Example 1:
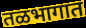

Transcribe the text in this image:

तळभागात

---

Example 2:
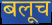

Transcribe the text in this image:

बलूच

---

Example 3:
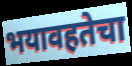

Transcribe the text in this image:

भयावहतेचा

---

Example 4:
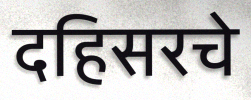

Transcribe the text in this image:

दहिसरचे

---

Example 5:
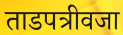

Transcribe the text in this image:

ताडपत्रीवजा